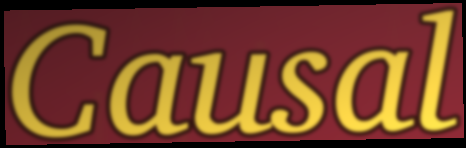
Causal